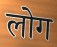
लोग